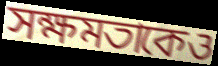
সক্ষমতাকেও